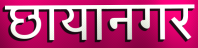
छायानगर